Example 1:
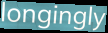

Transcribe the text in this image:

longingly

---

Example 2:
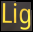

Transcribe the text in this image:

Lig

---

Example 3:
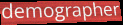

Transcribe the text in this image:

demographer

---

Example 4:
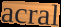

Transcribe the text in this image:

acral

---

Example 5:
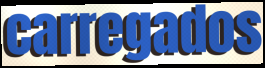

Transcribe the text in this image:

carregados